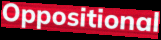
Oppositional